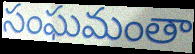
సంఘమంతా